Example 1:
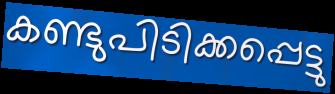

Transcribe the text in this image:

കണ്ടുപിടിക്കപ്പെട്ടു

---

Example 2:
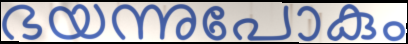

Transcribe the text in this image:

ഭയന്നുപോകും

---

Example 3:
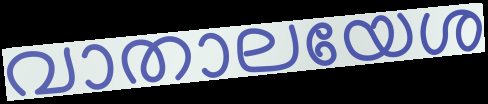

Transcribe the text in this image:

വാതാലയേശ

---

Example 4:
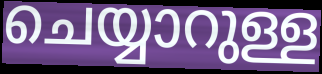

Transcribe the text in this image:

ചെയ്യാറുള്ള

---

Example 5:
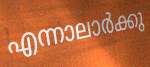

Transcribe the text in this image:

എന്നാലാർക്കു